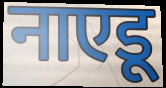
नाएडू